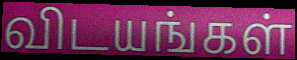
விடயங்கள்